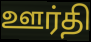
ஊர்தி